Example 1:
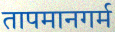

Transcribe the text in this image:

तापमानगर्म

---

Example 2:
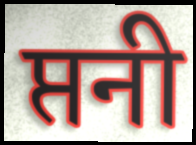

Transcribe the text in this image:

प्तनी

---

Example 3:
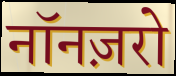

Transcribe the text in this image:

नॉनज़रो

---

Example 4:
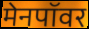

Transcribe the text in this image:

मेनपॉवर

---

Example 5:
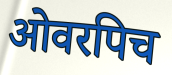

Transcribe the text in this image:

ओवरपिच